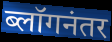
ब्लॉगनंतर